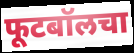
फूटबॉलचा